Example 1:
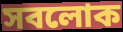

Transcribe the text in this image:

সবলোক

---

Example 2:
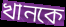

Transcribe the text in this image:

খানকে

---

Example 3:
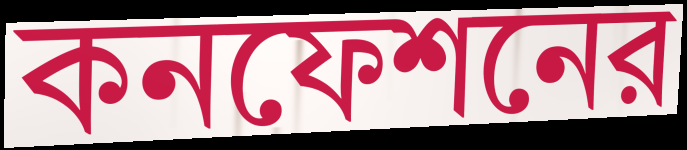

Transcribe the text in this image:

কনফেশনের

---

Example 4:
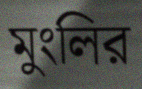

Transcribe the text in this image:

মুংলির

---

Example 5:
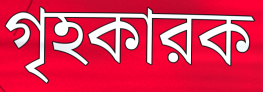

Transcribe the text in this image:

গৃহকারক